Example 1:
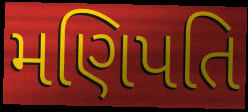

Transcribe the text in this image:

મણિપતિ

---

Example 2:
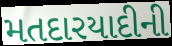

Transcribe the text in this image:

મતદારયાદીની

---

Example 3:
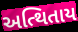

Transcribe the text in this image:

અત્થિતાય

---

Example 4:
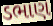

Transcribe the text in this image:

ડભાણ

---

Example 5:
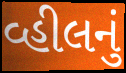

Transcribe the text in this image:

વ્હીલનું